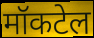
मॉकटेल